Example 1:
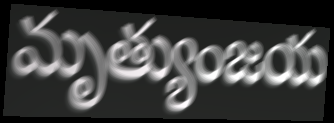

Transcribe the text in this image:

మృత్యుంజయ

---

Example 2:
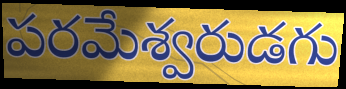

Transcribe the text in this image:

పరమేశ్వరుడగు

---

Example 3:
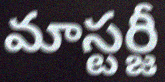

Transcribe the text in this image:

మాస్టర్జీ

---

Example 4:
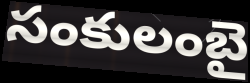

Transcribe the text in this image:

సంకులంబై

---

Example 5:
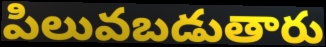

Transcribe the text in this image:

పిలువబడుతారు